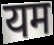
यम